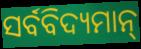
ସର୍ବବିଦ୍ୟମାନ୍